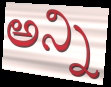
అన్ని